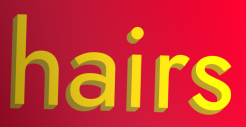
hairs